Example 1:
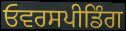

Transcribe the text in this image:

ਓਵਰਸਪੀਡਿੰਗ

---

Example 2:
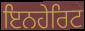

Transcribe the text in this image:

ਇਨਹੇਰਿਟ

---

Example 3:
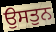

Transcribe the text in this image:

ਉਸਤੁਨ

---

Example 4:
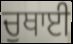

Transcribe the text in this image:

ਚੁਥਾਈ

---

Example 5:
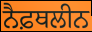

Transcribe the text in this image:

ਨੈਫ਼ਥਲੀਨ